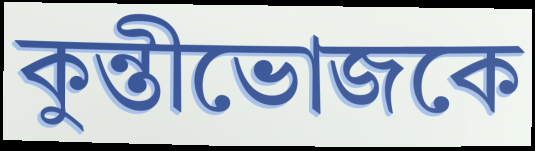
কুন্তীভোজকে